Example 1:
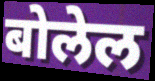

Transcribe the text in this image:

बोलेल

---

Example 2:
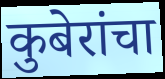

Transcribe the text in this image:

कुबेरांचा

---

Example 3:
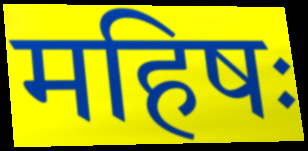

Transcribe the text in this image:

महिषः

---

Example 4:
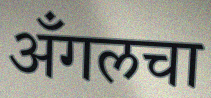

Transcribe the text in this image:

अँगलचा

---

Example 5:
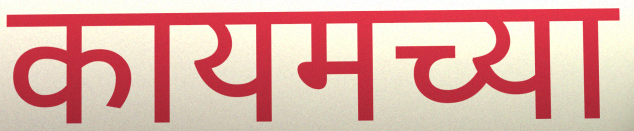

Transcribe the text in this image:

कायमच्या